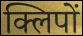
क्लिपों